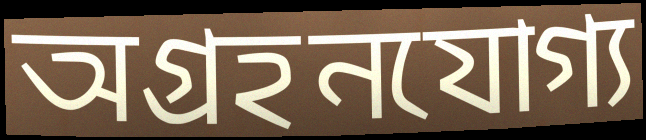
অগ্রহনযোগ্য